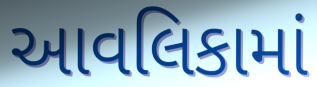
આવલિકામાં